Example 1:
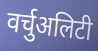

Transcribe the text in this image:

वर्चुअलिटी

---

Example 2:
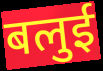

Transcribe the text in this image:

बलुई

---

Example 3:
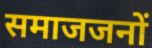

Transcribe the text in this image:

समाजजनों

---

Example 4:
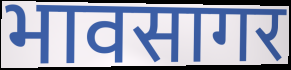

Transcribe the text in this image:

भावसागर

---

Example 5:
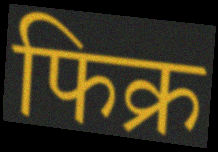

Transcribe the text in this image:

फिक्र